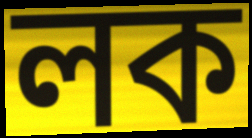
লক